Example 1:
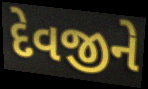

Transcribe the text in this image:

દેવજીને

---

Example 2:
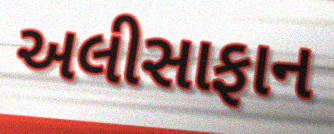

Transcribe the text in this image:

અલીસાફાન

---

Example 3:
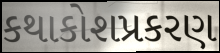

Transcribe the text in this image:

કથાકોશપ્રકરણ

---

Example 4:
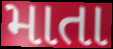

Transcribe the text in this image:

માતા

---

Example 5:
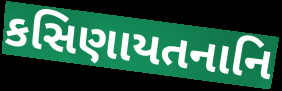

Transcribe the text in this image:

કસિણાયતનાનિ